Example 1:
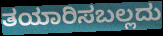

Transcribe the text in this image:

ತಯಾರಿಸಬಲ್ಲದು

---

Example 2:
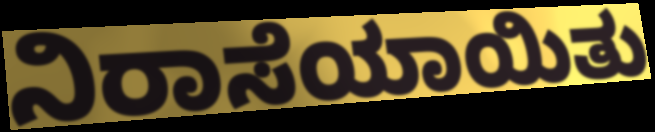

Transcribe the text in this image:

ನಿರಾಸೆಯಾಯಿತು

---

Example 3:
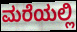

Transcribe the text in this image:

ಮರೆಯಲ್ಲಿ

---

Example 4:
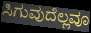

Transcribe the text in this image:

ಸಿಗುವುದೆಲ್ಲವೂ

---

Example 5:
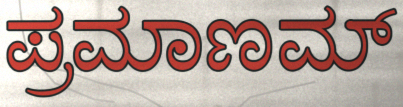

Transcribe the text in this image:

ಪ್ರಮಾಣಮ್